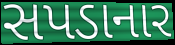
સપડાનાર